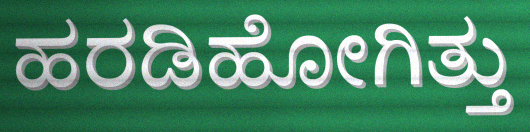
ಹರಡಿಹೋಗಿತ್ತು